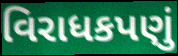
વિરાધકપણું